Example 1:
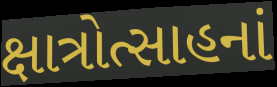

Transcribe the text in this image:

ક્ષાત્રોત્સાહનાં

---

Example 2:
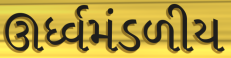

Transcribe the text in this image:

ઊર્ધ્વમંડળીય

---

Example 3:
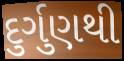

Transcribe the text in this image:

દુર્ગુણથી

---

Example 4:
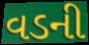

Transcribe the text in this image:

વડની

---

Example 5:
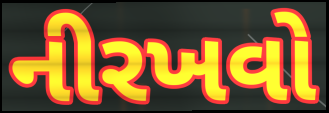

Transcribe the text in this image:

નીરખવો